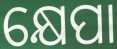
କ୍ଷେପା